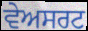
ਵੇਅਸਰਟ